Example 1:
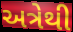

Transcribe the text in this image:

અત્રેથી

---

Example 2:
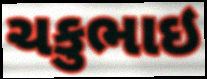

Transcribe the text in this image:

ચકુભાઇ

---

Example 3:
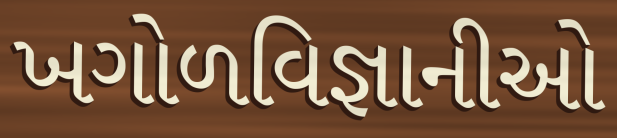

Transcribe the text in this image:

ખગોળવિજ્ઞાનીઓ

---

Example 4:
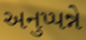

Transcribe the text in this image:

અનુપ્પન્ને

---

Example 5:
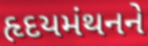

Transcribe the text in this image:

હૃદયમંથનને